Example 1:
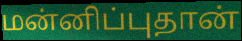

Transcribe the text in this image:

மன்னிப்புதான்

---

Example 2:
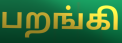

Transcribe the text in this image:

பறங்கி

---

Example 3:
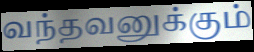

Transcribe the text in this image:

வந்தவனுக்கும்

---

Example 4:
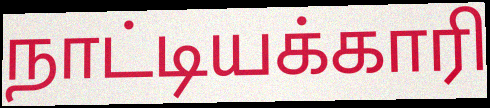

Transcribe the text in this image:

நாட்டியக்காரி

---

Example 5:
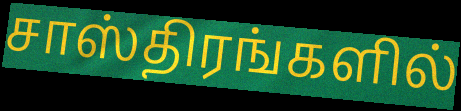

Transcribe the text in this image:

சாஸ்திரங்களில்